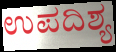
ಉಪದಿಶ್ಯ